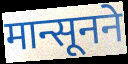
मान्सूनने